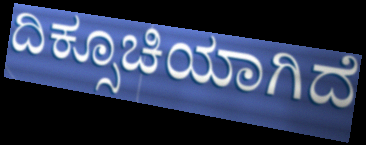
ದಿಕ್ಸೂಚಿಯಾಗಿದೆ